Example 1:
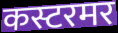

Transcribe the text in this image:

कस्टरमर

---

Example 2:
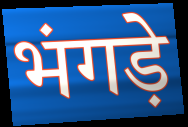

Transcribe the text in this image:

भंगड़े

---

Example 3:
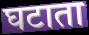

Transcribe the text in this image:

घटाता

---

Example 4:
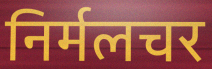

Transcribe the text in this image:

निर्मलचर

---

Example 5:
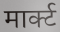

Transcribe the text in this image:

मार्क्ट